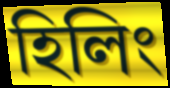
হিলিং